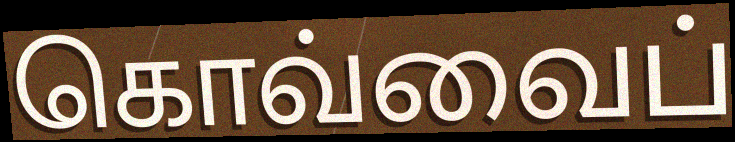
கொவ்வைப்